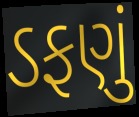
ડફણું